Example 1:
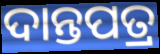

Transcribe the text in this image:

ଦାନ୍ତପତ୍ର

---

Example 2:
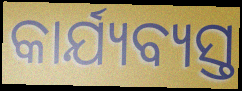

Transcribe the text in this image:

କାର୍ଯ୍ୟବ୍ୟସ୍ତ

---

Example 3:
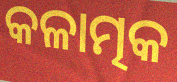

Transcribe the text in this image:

କଳାତ୍ମକ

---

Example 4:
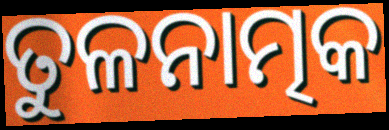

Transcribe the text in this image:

ତୁଳନାତ୍ମକ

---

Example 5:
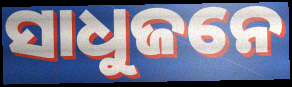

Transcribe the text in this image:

ସାଧୁଜନେ